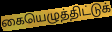
கையெழுத்திட்டுக்